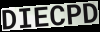
DIECPD